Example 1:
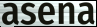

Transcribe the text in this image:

asena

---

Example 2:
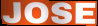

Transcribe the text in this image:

JOSE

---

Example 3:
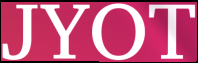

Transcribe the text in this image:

JYOT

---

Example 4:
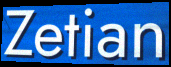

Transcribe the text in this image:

Zetian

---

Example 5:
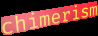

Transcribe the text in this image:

chimerism